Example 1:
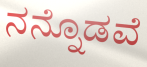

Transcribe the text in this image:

ನನ್ನೊಡವೆ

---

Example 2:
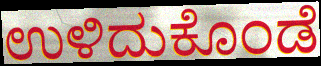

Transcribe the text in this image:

ಉಳಿದುಕೊಂಡೆ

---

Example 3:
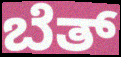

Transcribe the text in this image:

ಬೆತ್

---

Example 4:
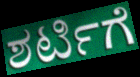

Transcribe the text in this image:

ಶರ್ಟಿಗೆ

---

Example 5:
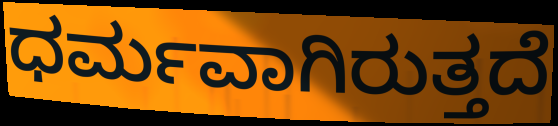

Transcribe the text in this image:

ಧರ್ಮವಾಗಿರುತ್ತದೆ